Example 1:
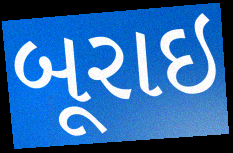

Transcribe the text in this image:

બૂરાઇ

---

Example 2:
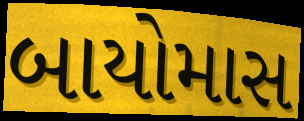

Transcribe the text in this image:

બાયોમાસ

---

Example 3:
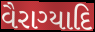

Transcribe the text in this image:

વૈરાગ્યાદિ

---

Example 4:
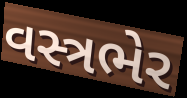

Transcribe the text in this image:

વસ્ત્રભેર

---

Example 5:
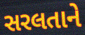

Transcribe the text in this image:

સરલતાને